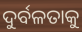
ଦୁର୍ବଳତାକୁ